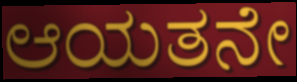
ಆಯತನೇ